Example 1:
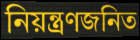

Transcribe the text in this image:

নিয়ন্ত্রণজনিত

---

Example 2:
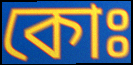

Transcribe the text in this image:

কোঃ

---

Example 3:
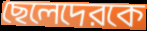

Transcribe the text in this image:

ছেলেদেরকে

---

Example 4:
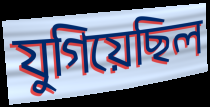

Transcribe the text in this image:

যুগিয়েছিল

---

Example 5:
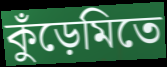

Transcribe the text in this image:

কুঁড়েমিতে